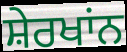
ਸ਼ੇਰਖਾਂਨ